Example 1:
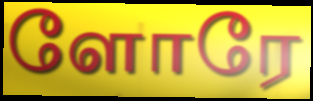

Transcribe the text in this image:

ளோரே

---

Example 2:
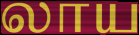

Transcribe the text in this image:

லாய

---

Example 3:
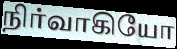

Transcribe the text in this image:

நிர்வாகியோ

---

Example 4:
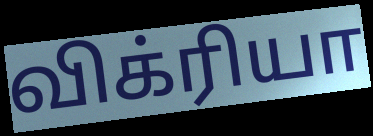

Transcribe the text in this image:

விக்ரியா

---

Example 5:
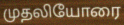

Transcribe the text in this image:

முதலியோரை